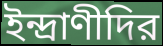
ইন্দ্রাণীদির